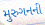
મુરુગનની